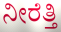
ನೀರೆತ್ತಿ